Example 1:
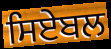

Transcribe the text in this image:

ਸਿਏਬਲ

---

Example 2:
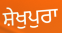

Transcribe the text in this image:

ਸ਼ੇਖੁਪੁਰਾ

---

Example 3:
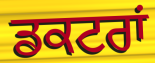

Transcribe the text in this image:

ਡਕਟਰਾਂ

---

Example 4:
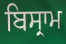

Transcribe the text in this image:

ਬਿਸ੍ਰਾਮ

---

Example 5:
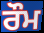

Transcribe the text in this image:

ਰੌਮ